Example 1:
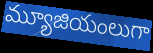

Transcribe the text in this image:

మ్యూజియంలుగా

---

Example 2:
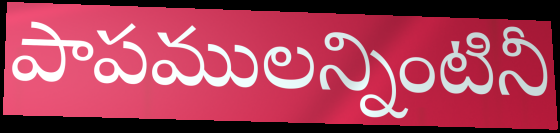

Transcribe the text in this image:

పాపములన్నింటినీ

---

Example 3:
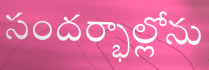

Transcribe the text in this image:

సందర్భాల్లోను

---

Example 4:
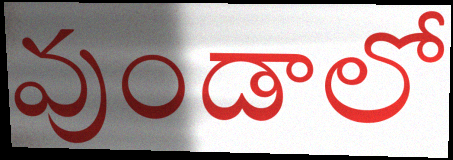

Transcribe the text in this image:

వుండాలో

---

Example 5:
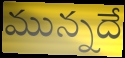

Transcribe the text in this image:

మున్నదే